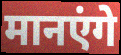
मानएंगे